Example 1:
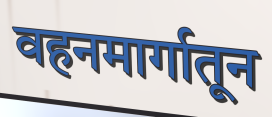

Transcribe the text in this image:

वहनमार्गातून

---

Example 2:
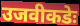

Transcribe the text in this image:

उजवीकडेः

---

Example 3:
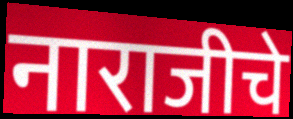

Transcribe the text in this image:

नाराजीचे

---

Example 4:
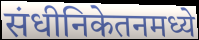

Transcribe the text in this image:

संधीनिकेतनमध्ये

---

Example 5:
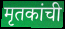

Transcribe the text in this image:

मृतकांची